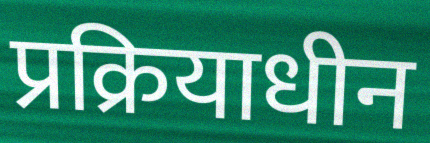
प्रक्रियाधीन